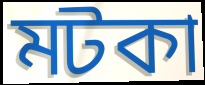
মটকা